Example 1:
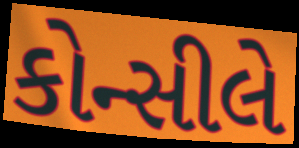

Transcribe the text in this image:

કોન્સીલે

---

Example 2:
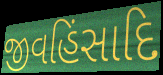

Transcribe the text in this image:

જીવહિંસાદિ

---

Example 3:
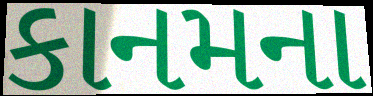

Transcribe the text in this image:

કાનમના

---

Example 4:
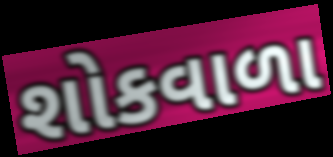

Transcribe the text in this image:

શોકવાળા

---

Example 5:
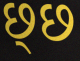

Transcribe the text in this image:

છ્છ